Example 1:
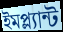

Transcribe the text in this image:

ইমপ্ল্যান্ট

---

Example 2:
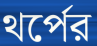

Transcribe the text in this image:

থর্পের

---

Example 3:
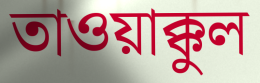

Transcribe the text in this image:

তাওয়াক্কুল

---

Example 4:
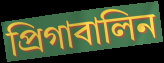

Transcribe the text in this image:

প্রিগাবালিন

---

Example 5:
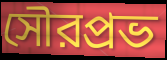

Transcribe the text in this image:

সৌরপ্রভ